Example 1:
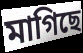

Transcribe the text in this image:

মাগিছে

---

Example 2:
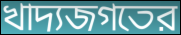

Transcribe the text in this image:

খাদ্যজগতের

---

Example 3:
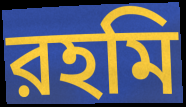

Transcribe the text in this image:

রহমি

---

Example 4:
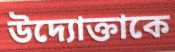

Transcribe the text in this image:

উদ্যোক্তাকে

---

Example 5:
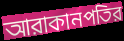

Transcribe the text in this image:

আরাকানপতির